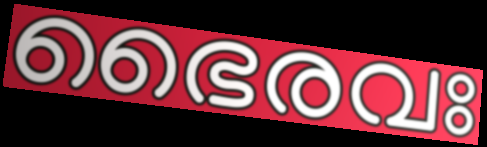
ഭൈരവഃ